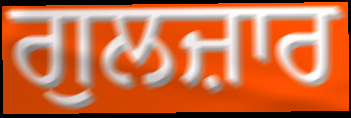
ਗੁਲਜ਼ਾਰ